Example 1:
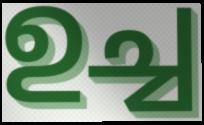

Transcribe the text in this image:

ഉച്ച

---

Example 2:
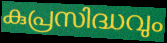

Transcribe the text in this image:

കുപ്രസിദ്ധവും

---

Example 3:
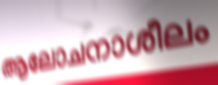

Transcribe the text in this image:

ആലോചനാശീലം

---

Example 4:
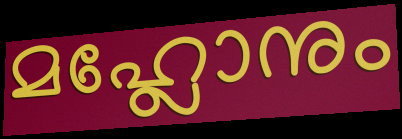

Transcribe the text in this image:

മഹ്ലോനും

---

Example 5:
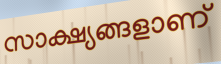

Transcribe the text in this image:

സാക്ഷ്യങ്ങളാണ്